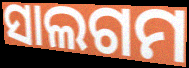
ସାଲଗମ